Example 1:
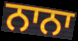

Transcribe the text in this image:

ਨਾਨਾ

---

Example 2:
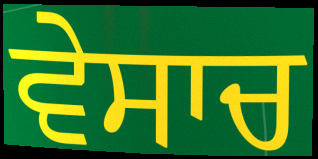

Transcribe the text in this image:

ਵੇਸਾਚ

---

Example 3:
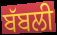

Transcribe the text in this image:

ਬੱਬਲੀ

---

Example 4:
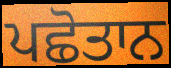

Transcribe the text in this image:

ਪਛੋਤਾਨ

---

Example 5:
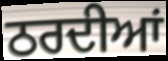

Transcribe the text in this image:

ਠਰਦੀਆਂ